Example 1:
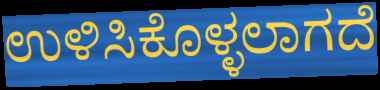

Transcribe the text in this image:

ಉಳಿಸಿಕೊಳ್ಳಲಾಗದೆ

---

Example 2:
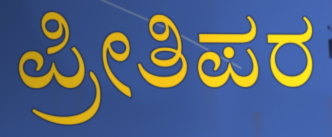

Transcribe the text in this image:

ಪ್ರೀತಿಪರ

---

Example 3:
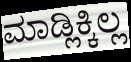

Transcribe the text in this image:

ಮಾಡ್ಲಿಕ್ಕಿಲ್ಲ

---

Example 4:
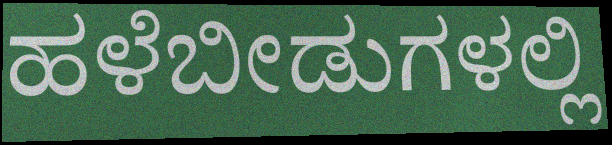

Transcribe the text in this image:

ಹಳೆಬೀಡುಗಳಲ್ಲಿ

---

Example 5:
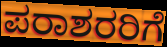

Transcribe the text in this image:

ಪರಾಶರರಿಗೆ